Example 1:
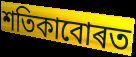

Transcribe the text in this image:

শতিকাবোৰত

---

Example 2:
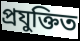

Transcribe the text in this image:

প্ৰযুক্তিত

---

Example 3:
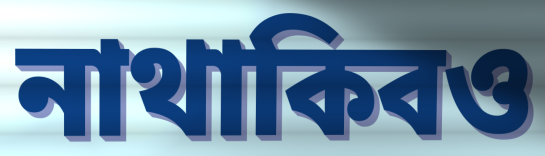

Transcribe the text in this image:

নাথাকিবও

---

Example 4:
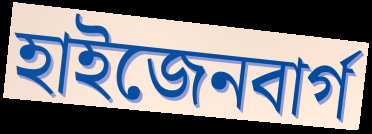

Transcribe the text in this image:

হাইজেনবাৰ্গ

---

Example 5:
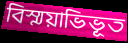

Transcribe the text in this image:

বিস্ময়াভিভূত